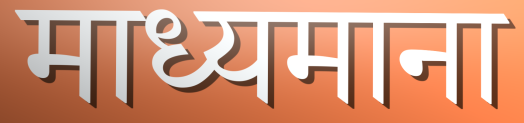
माध्यमाना